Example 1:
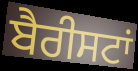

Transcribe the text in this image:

ਬੈਰੀਸਟਾਂ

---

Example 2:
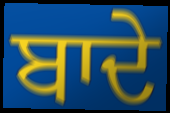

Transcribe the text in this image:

ਬਾਦੇ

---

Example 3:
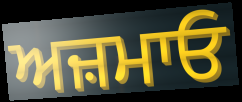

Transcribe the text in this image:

ਅਜ਼ਮਾਓ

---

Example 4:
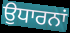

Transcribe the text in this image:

ਉਧਾਰਨਾਂ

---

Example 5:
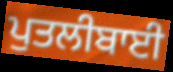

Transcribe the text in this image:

ਪੁਤਲੀਬਾਈ